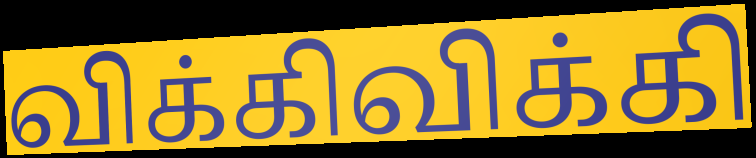
விக்கிவிக்கி